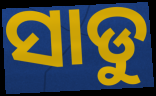
ସାଡୁ